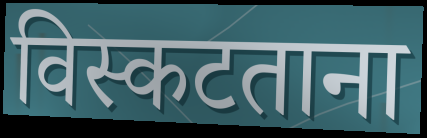
विस्कटताना